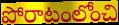
పోరాటంలోంచి